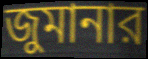
জুমানার